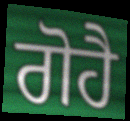
ਗੋਹੈ